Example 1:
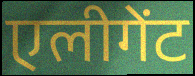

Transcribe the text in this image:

एलीगेंट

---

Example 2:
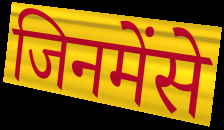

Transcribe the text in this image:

जिनमेंसे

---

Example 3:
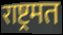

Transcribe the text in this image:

राष्ट्रमत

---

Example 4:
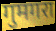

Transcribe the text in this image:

गुमगरा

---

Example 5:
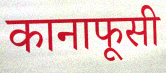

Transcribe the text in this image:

कानाफूसी